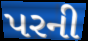
પરની